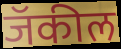
जॅकील